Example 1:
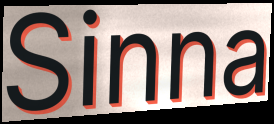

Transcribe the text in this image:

Sinna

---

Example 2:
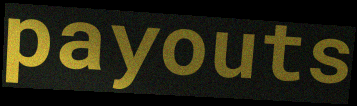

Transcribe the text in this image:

payouts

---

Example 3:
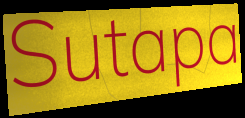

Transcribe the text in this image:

Sutapa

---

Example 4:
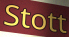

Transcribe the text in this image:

Stott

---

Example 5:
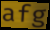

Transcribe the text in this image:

afg